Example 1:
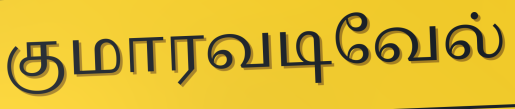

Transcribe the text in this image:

குமாரவடிவேல்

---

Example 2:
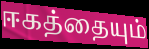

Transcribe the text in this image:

ஈகத்தையும்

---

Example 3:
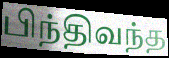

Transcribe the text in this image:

பிந்திவந்த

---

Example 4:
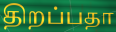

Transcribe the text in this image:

திறப்பதா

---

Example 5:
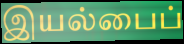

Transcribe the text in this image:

இயல்பைப்